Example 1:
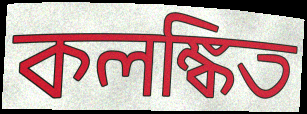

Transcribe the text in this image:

কলঙ্কিত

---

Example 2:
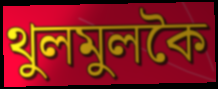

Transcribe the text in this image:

থুলমুলকৈ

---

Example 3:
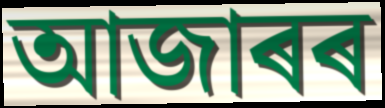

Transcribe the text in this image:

আজাৰৰ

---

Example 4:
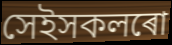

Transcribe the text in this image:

সেইসকলৰো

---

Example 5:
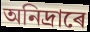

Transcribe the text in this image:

অনিদ্ৰাৰে